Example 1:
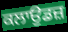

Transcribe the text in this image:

ਕਲਾਉਡਜ਼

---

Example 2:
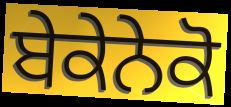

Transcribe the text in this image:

ਬੇਕੇਨੇਕੋ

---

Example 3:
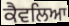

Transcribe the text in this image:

ਕੈਵਲਿਆ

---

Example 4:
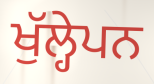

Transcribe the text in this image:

ਖੁੱਲ੍ਹੇਪਨ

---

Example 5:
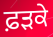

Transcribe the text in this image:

ਫ਼ਡ਼ਕੇ